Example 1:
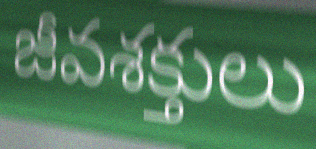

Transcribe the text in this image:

జీవశక్తులు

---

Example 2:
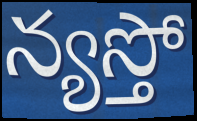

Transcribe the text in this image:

న్యస్తో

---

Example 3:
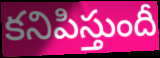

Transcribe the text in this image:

కనిపిస్తుందీ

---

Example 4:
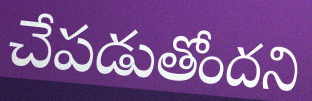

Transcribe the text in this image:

చేపడుతోందని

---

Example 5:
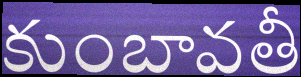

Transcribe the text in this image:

కుంబావతీ